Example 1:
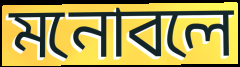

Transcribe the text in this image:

মনোবলে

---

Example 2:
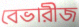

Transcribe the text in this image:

বেভারীজ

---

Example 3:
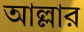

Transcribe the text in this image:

আল্লার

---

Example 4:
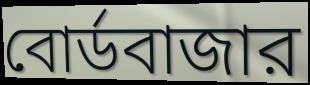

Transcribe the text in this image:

বোর্ডবাজার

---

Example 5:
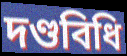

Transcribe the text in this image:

দণ্ডবিধি